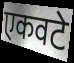
एकवटे